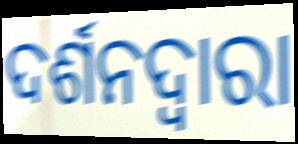
ଦର୍ଶନଦ୍ୱାରା